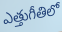
ఎత్తుగీతిలో